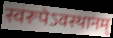
स्वरूपेऽवस्थानम्